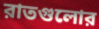
রাতগুলোর